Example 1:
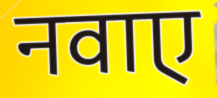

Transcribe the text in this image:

नवाए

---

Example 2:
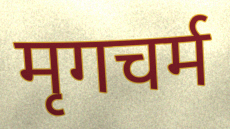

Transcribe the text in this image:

मृगचर्म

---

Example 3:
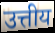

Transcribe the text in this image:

उत्तीय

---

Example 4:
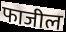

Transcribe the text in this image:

फाजील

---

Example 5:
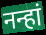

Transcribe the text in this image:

नन्हां